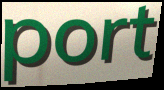
port